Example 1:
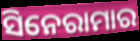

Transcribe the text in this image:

ସିନେରାମାର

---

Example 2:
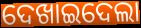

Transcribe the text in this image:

ଦେଖାଇଦେଲା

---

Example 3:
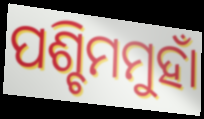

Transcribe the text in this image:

ପଶ୍ଚିମମୁହାଁ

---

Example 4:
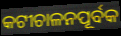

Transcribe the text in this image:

କଟୀଚାଳନପୂର୍ବକ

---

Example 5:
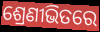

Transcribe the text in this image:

ଶ୍ରେଣୀଭିତରେ